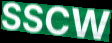
SSCW